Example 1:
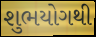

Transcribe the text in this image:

શુભયોગથી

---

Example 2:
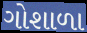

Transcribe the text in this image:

ગોશાળા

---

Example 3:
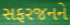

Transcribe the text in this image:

સફરજનને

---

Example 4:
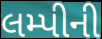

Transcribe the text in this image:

લમ્પીની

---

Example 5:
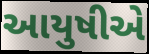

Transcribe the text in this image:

આયુષીએ